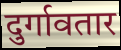
दुर्गावतार